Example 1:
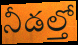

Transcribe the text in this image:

నీడల్తో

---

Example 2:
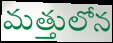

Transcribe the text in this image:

మత్తులోన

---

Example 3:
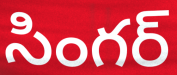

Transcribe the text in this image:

సింగర్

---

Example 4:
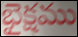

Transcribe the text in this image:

భైక్షము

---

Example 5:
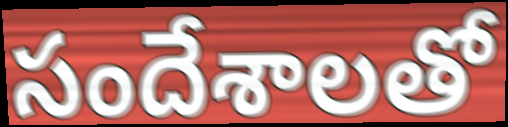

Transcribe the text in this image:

సందేశాలతో